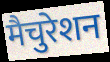
मैचुरेशन